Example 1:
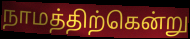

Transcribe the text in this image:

நாமத்திற்கென்று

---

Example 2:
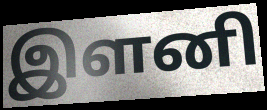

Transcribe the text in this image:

இளனி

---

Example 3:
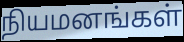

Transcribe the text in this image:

நியமனங்கள்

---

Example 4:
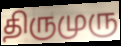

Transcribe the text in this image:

திருமுரு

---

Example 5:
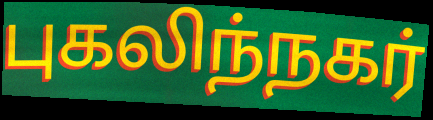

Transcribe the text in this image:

புகலிந்நகர்